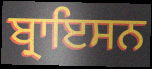
ਬ੍ਰਾਇਸਨ